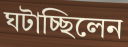
ঘটাচ্ছিলেন